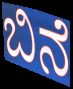
ಬಿನೆ